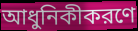
আধুনিকীকরণে